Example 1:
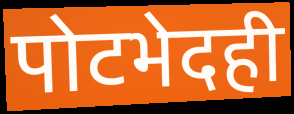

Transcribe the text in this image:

पोटभेदही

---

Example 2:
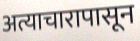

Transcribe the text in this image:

अत्याचारापासून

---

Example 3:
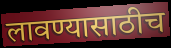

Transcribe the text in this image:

लावण्यासाठीच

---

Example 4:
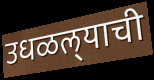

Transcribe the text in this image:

उधळल्याची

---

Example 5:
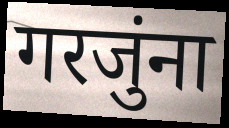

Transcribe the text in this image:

गरजुंना